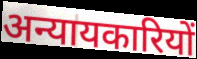
अन्यायकारियों